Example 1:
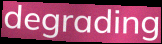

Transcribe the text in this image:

degrading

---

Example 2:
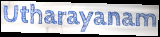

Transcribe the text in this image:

Utharayanam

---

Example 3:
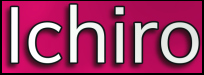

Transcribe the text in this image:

Ichiro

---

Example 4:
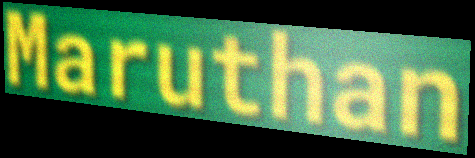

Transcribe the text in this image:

Maruthan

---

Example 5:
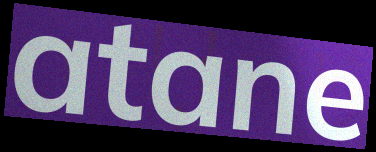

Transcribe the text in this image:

atane